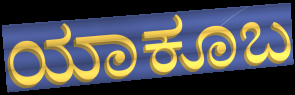
ಯಾಕೂಬ